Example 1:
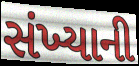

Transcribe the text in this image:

સંખ્યાની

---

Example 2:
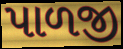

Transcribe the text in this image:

પાળજી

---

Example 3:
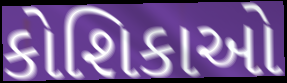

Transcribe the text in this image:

કોશિકાઓ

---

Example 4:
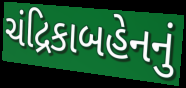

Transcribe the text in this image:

ચંદ્રિકાબહેનનું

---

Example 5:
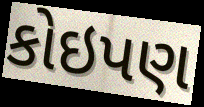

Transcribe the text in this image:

કોઇપણ